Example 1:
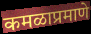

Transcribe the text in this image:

कमळाप्रमाणे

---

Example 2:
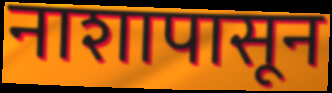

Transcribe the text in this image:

नाशापासून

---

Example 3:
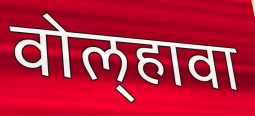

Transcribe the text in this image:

वोल्हावा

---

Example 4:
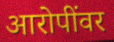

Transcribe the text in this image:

आरोपींवर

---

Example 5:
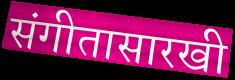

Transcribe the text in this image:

संगीतासारखी